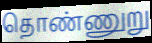
தொண்ணுறு